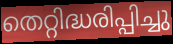
തെറ്റിദ്ധരിപ്പിച്ചു